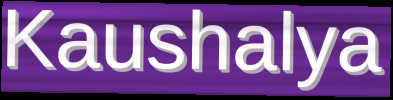
Kaushalya